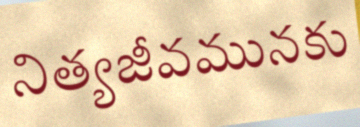
నిత్యజీవమునకు